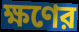
ক্ষণের